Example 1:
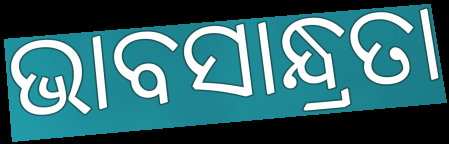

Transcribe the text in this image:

ଭାବସାନ୍ଧ୍ରତା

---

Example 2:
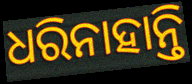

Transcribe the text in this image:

ଧରିନାହାନ୍ତି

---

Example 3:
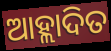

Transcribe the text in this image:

ଆହ୍ଲାଦିତ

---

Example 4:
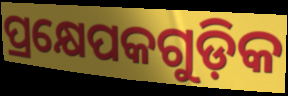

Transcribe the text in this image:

ପ୍ରକ୍ଷେପକଗୁଡ଼ିକ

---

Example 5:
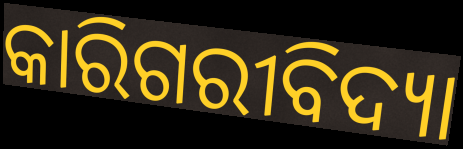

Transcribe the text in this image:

କାରିଗରୀବିଦ୍ୟା